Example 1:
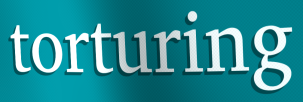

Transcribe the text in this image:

torturing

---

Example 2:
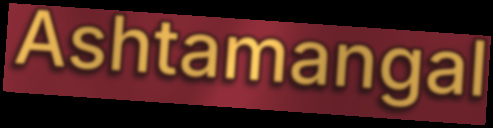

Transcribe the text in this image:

Ashtamangal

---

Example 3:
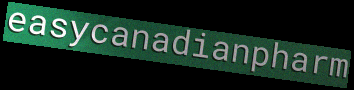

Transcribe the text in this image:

easycanadianpharm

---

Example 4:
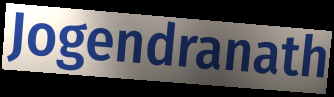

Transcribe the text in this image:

Jogendranath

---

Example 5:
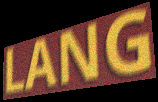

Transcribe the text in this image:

LANG